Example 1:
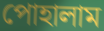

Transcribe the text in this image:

পোহালাম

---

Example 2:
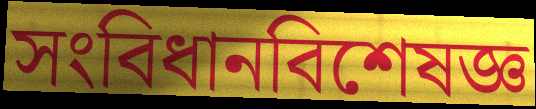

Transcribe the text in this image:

সংবিধানবিশেষজ্ঞ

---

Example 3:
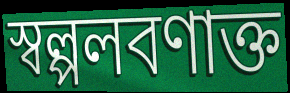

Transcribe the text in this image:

স্বল্পলবণাক্ত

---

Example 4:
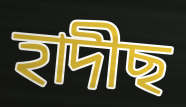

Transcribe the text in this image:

হাদীছ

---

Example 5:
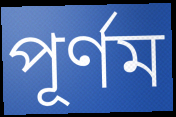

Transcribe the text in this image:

পূর্ণম